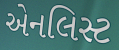
એનલિસ્ટ